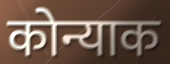
कोन्याक